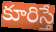
కూరిస్తే